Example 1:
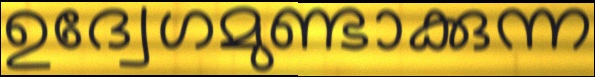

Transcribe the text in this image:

ഉദ്വേഗമുണ്ടാക്കുന്ന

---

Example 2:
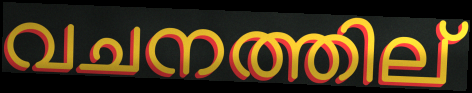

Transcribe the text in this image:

വചനത്തില്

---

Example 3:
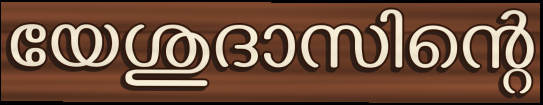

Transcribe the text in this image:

യേശുദാസിന്റെ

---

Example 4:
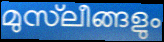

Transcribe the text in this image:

മുസ്‌ലീങ്ങളും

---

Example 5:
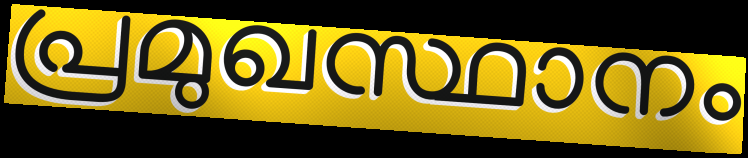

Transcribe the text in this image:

പ്രമുഖസ്ഥാനം